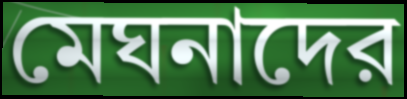
মেঘনাদের